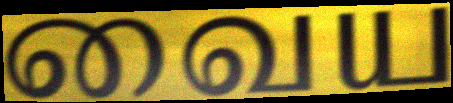
வைய